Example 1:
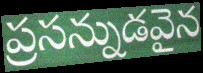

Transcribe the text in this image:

ప్రసన్నుడవైన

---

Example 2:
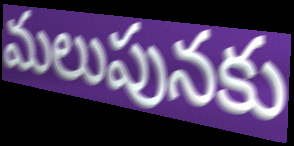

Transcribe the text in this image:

మలుపునకు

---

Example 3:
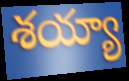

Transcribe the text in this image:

శయ్యా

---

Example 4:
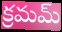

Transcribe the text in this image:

క్రమమ్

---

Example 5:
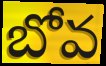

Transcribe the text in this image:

బోవ